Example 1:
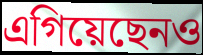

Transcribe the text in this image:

এগিয়েছেনও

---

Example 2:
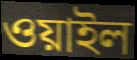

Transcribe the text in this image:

ওয়াইল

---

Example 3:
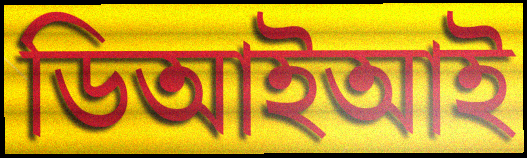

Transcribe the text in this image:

ডিআইআই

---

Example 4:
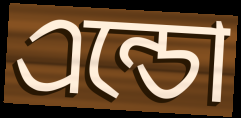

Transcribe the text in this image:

এন্ডো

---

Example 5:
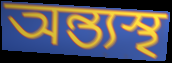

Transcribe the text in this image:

অন্ত্যস্থ